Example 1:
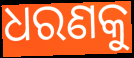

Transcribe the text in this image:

ଧରଣକୁ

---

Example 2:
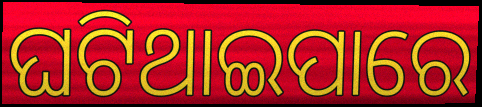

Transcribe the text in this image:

ଘଟିଥାଇପାରେ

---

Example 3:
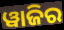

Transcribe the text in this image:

ୱାଜିର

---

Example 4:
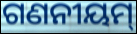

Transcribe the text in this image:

ଗଣନୀୟମ୍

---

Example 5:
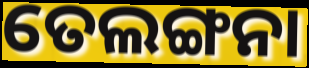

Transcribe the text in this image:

ତେଲଙ୍ଗନା